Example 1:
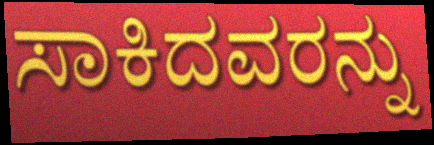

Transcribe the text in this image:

ಸಾಕಿದವರನ್ನು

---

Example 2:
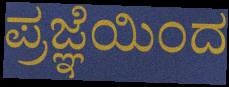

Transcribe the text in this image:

ಪ್ರಜ್ಞೆಯಿಂದ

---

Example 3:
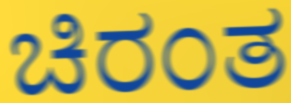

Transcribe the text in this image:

ಚಿರಂತ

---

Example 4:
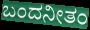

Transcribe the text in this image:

ಬಂದನೀತಂ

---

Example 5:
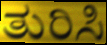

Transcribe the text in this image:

ತುರಿಸಿ